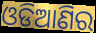
ଓଡିଆଣିର